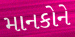
માનકોને